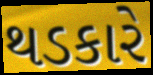
થડકારે